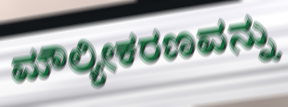
ಮೌಲ್ಯೀಕರಣವನ್ನು